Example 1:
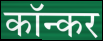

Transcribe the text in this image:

कॉन्कर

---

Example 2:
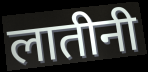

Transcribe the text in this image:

लातीनी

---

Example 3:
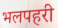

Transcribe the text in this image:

भलपहरी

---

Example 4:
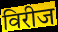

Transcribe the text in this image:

विरीज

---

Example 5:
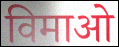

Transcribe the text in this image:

विमाओ